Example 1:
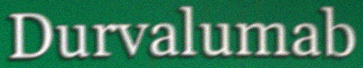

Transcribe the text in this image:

Durvalumab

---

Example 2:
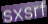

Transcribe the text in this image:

sxsrf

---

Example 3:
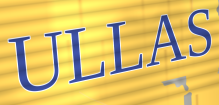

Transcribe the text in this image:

ULLAS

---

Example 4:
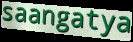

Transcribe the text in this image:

saangatya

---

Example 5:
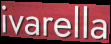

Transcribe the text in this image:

ivarella